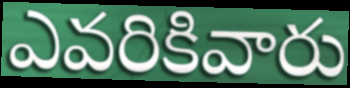
ఎవరికివారు